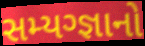
સમ્યગ્જ્ઞાનો